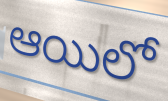
ఆయిలో